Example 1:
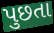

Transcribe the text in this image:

પુછતા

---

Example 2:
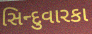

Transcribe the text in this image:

સિન્દુવારકા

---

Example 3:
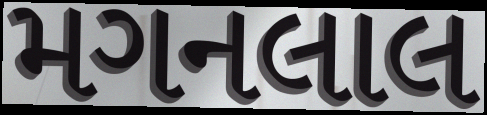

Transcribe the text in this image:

મગનલાલ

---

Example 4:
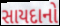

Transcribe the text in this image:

સાયદાનો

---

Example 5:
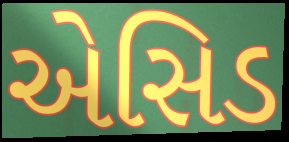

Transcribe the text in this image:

એસિડ